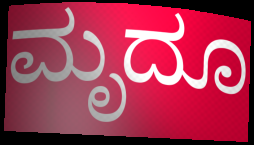
ಮೃದೂ